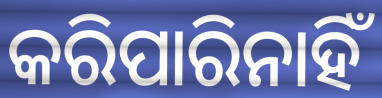
କରିପାରିନାହିଁ